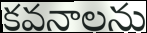
కవనాలను